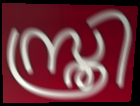
സ്ത്രി